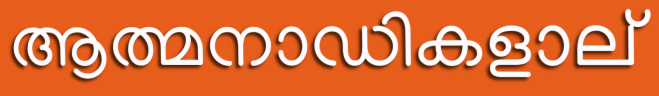
ആത്മനാഡികളാല്